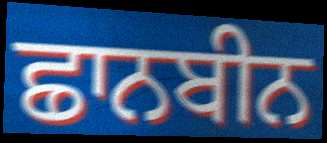
ਛਾਨਬੀਨ